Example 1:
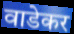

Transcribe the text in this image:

वाडेकर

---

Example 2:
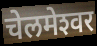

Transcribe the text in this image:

चेलमेश्‍वर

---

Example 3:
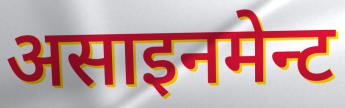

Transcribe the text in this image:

असाइनमेन्ट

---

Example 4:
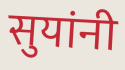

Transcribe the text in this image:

सुयांनी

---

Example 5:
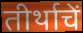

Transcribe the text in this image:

तीर्थाचें